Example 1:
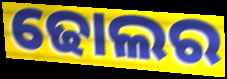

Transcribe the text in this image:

ଢୋଲର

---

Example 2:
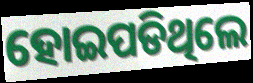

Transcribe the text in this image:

ହୋଇପଡିଥିଲେ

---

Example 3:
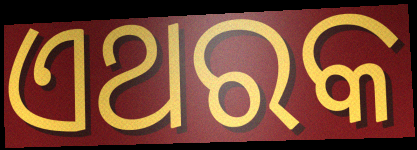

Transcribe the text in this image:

ଏଥରକ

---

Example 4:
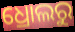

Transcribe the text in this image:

ଧ୍ରୋଲରୁ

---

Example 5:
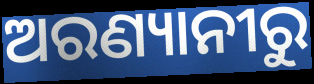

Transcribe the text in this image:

ଅରଣ୍ୟାନୀରୁ